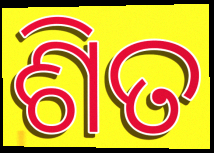
ଶିତ